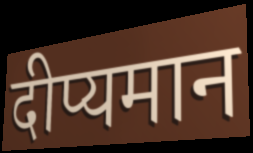
दीप्यमान